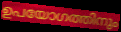
ഉപയോഗത്തിനും